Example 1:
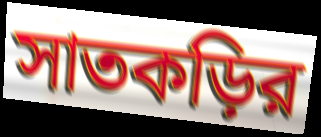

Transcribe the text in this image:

সাতকড়ির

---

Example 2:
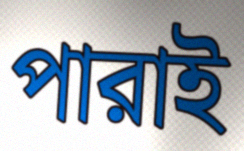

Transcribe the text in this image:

পারাই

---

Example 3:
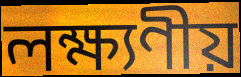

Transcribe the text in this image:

লক্ষ্যণীয়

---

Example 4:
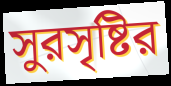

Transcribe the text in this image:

সুরসৃষ্টির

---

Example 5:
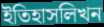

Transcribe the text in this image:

ইতিহাসলিখন